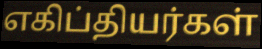
எகிப்தியர்கள்